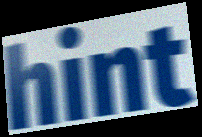
hint